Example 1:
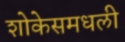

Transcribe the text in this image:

शोकेसमधली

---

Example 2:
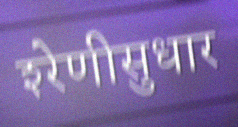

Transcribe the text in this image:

श्रेणीसुधार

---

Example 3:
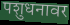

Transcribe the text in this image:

पशुधनावर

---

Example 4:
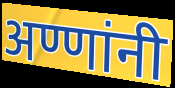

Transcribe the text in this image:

अण्णांनी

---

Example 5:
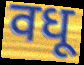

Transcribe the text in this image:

वधू